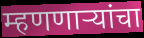
म्हणणाऱ्यांचा